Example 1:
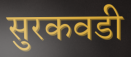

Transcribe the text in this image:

सुरकवडी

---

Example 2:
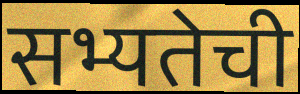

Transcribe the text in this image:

सभ्यतेची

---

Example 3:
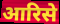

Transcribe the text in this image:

आरिसे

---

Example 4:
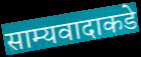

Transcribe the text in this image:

साम्यवादाकडे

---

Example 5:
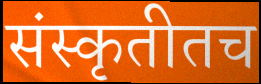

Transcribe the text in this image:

संस्कृतीतच